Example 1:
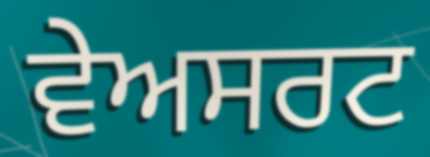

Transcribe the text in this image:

ਵੇਅਸਰਟ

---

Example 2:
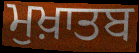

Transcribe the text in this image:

ਮੁਖ਼ਾਤਬ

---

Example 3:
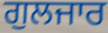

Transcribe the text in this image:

ਗੁਲਜਾਰ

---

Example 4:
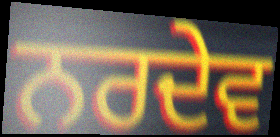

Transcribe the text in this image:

ਨਰਦੇਵ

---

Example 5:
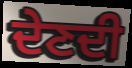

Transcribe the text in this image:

ਦੇਣਦੀ